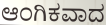
ಆಂಗಿಕವಾದ